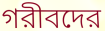
গরীবদের